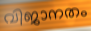
വിജാനതം